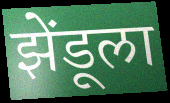
झेंडूला